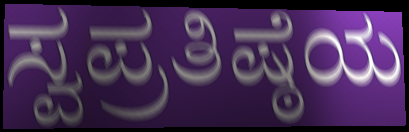
ಸ್ವಪ್ರತಿಷ್ಠೆಯ